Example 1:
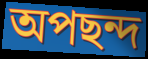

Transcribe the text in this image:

অপছন্দ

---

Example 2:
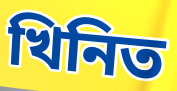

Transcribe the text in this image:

খিনিত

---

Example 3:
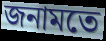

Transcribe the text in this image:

জনামতে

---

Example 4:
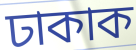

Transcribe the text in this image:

ঢাকাক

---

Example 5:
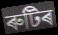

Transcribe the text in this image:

ৰুটিৰ